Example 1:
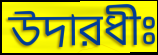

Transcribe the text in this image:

উদারধীঃ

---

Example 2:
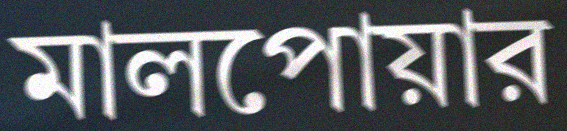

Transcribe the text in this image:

মালপোয়ার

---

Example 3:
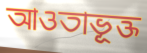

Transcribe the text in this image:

আওতাভূক্ত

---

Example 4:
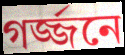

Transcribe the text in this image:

গর্জ্জনে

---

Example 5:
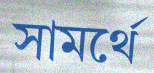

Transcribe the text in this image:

সামর্থে